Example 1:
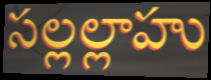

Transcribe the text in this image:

సల్లల్లాహు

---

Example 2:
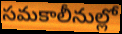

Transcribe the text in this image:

సమకాలీనుల్లో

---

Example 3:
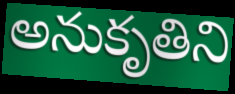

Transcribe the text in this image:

అనుకృతిని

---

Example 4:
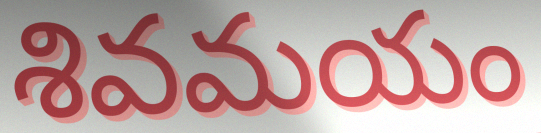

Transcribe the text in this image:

శివమయం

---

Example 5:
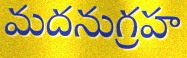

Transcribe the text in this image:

మదనుగ్రహ